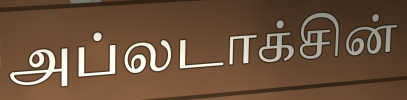
அப்லடாக்சின்